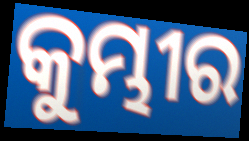
କୁମ୍ଭୀର